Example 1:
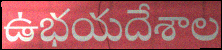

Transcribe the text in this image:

ఉభయదేశాల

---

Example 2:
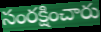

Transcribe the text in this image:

సంరక్షించారు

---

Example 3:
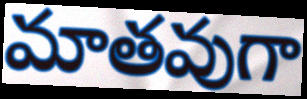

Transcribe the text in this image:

మాతవుగా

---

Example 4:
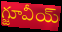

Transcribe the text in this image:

గ్జూవీయ్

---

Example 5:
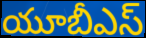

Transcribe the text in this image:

యూబీఎస్